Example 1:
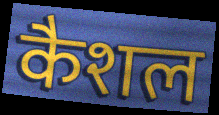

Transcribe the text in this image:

कैशल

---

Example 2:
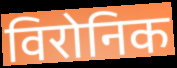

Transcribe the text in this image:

विरोनिक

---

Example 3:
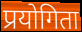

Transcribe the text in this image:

प्रयोगिता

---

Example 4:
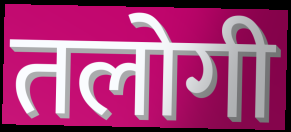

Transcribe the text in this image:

तलोगी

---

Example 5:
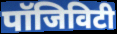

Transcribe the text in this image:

पॉजिविटी